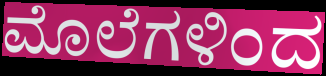
ಮೊಲೆಗಳಿಂದ